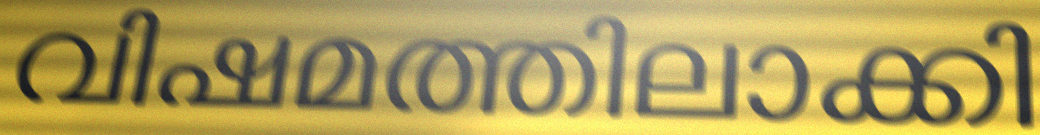
വിഷമത്തിലാക്കി